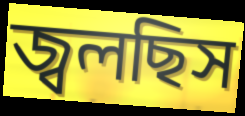
জ্বলছিস